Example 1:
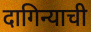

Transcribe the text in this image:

दागिन्याची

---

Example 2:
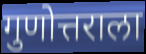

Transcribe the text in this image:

गुणोत्तराला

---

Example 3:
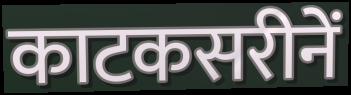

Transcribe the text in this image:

काटकसरीनें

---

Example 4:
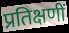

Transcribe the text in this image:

प्रतिक्षणीं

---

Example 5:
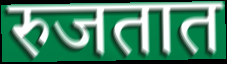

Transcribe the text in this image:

रुजतात